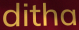
ditha